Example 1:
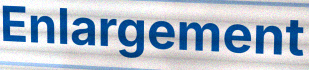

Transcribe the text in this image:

Enlargement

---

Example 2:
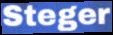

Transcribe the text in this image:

Steger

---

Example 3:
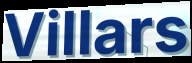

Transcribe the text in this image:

Villars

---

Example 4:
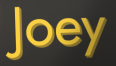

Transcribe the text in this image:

Joey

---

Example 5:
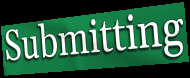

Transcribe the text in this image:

Submitting